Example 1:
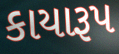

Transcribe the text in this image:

કાયારૂપ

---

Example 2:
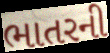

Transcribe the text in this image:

ભાતરની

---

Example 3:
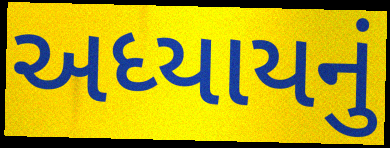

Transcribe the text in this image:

અધ્યાયનું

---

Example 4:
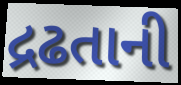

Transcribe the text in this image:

દ્રઢતાની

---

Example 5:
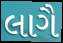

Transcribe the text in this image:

લાગૈ